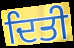
ਦਿਤੀ